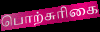
பொற்சுரிகை